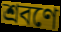
শ্রবণে